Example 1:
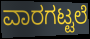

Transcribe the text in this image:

ವಾರಗಟ್ಟಲೆ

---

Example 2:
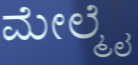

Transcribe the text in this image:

ಮೇಲ್ಮೈ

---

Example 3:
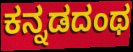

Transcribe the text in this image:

ಕನ್ನಡದಂಥ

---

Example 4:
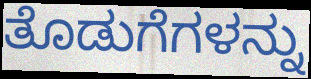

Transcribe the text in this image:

ತೊಡುಗೆಗಳನ್ನು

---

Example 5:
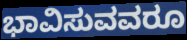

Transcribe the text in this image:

ಭಾವಿಸುವವರೂ